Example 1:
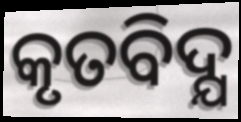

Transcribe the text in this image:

କୃତବିଦ୍ଯ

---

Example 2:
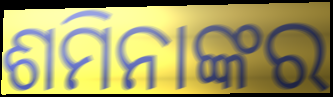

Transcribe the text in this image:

ଶମିନାଙ୍କର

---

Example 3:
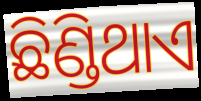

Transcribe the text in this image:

ଛିଣ୍ଡିଥାଏ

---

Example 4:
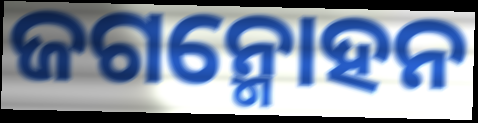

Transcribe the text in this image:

ଜଗନ୍ମୋହନ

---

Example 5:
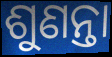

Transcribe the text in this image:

ଶୁଣନ୍ତା